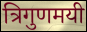
त्रिगुणमयी